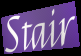
Stair